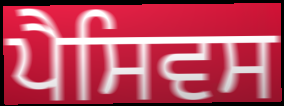
ਪੈਸਿਵਸ